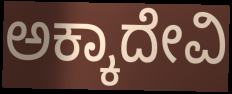
ಅಕ್ಕಾದೇವಿ